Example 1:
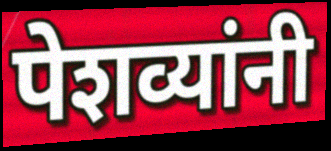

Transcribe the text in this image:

पेशव्यांनी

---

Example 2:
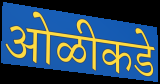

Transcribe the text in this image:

ओळीकडे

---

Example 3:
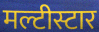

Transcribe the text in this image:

मल्टीस्टार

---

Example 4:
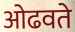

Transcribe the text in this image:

ओढवते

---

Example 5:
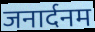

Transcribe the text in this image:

जनार्दनम